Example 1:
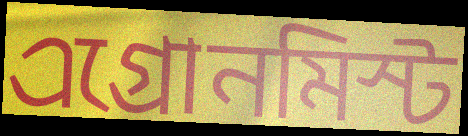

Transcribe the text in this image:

এগ্রোনমিস্ট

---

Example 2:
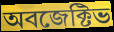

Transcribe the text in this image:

অবজেক্টিভ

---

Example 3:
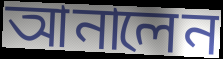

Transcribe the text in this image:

আনালেন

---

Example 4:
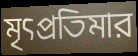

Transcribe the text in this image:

মৃৎপ্রতিমার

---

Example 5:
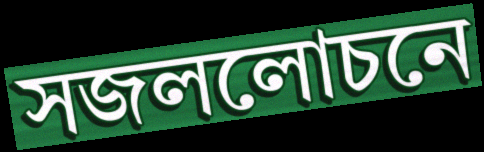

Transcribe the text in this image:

সজললোচনে